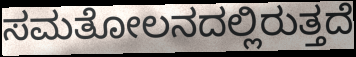
ಸಮತೋಲನದಲ್ಲಿರುತ್ತದೆ